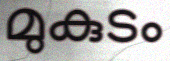
മുകുടം